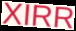
XIRR